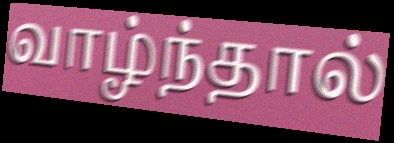
வாழ்ந்தால்